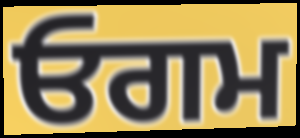
ਓਗਮ